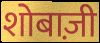
शोबाज़ी